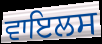
ਵਾਇਲਸ